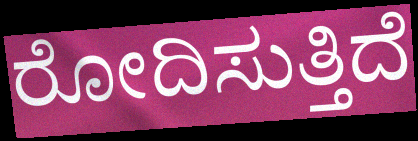
ರೋದಿಸುತ್ತಿದೆ